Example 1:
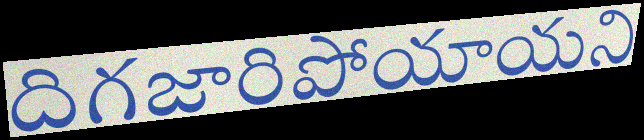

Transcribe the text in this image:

దిగజారిపోయాయని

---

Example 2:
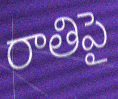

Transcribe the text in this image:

రాతిపై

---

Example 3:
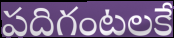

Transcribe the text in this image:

పదిగంటలకే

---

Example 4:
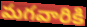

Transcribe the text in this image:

మగవారికి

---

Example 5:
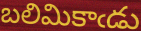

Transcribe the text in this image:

బలిమికాఁడు